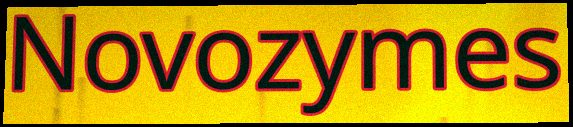
Novozymes